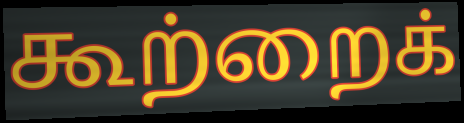
கூற்றைக்